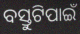
ବସ୍ତୁଟିପାଇଁ